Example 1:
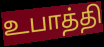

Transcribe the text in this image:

உபாத்தி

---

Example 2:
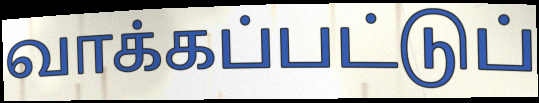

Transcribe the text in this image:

வாக்கப்பட்டுப்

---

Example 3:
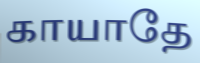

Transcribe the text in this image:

காயாதே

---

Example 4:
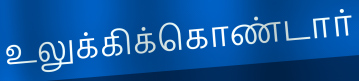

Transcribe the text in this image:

உலுக்கிக்கொண்டார்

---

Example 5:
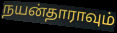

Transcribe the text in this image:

நயன்தாராவும்